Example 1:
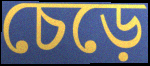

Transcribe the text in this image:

চেড়ে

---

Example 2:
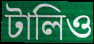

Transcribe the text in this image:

টালিও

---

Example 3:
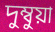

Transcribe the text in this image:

দুম্বুয়া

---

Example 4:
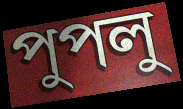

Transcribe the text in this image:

পুপলু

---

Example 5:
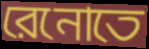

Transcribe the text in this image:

রেনোতে